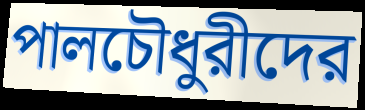
পালচৌধুরীদের